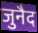
जुनैद